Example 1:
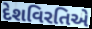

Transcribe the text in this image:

દેશવિરતિએ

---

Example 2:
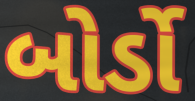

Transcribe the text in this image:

બોર્ડો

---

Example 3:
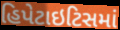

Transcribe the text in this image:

હિપેટાઇટિસમાં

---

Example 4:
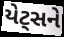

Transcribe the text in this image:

યેટ્સને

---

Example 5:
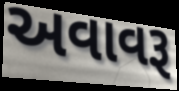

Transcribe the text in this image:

અવાવરૂ